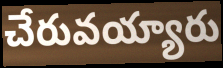
చేరువయ్యారు